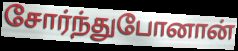
சோர்ந்துபோனான்